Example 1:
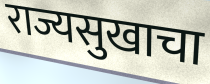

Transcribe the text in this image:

राज्यसुखाचा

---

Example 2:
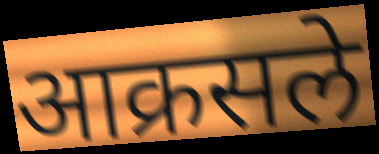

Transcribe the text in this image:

आक्रसले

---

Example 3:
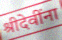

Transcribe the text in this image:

श्रीदेवींना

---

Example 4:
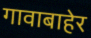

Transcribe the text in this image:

गावाबाहेर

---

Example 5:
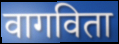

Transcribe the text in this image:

वागविता